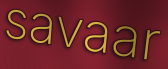
savaar